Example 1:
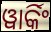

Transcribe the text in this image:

ୱାର୍କିଂ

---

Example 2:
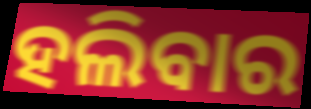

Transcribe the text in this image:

ହଲିବାର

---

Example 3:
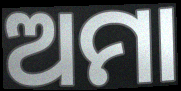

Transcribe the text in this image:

ଅମା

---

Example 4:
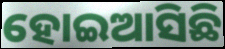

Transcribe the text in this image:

ହୋଇଆସିଛି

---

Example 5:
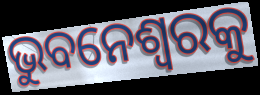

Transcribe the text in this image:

ଭୁବନେଶ୍ୱରକୁ